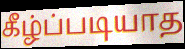
கீழ்ப்படியாத